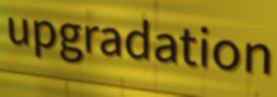
upgradation